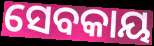
ସେବକାୟ